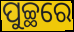
ପୁଚ୍ଛରେ